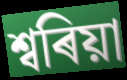
শ্বৰিয়া